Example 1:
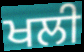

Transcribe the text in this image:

ਖਲੀ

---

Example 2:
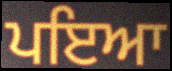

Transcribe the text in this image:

ਪਇਆ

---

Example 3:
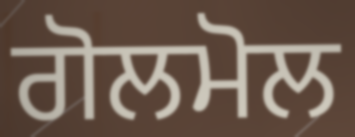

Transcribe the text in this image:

ਗੋਲਮੋਲ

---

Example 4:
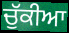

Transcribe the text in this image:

ਚੁੱਕੀਆ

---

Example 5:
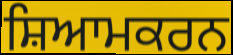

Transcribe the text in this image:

ਸ਼ਿਆਮਕਰਨ